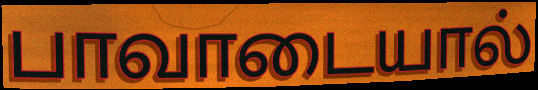
பாவாடையால்